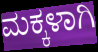
ಮಕ್ಕಳಾಗಿ